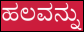
ಹಲವನ್ನು